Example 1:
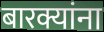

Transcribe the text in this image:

बारक्यांना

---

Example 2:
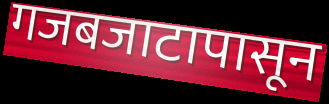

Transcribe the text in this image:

गजबजाटापासून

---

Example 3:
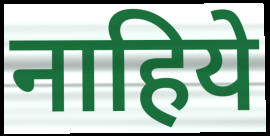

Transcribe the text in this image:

नाहिये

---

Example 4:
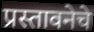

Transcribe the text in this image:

प्रस्तावनेचे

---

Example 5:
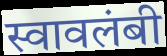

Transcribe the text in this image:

स्वावलंबी